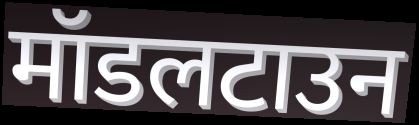
मॉडलटाउन